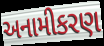
અનામીકરણ